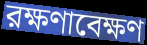
রক্ষণাবেক্ষণ